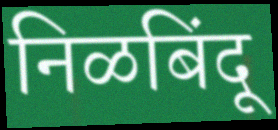
निळबिंदू